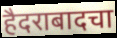
हैदराबादचा